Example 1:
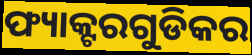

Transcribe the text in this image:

ଫ୍ୟାକ୍ଟରଗୁଡିକର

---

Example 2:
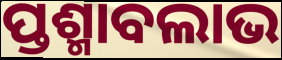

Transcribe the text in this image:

ପ୍ତଶ୍ମାବଲାଭ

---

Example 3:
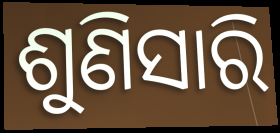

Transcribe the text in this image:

ଶୁଣିସାରି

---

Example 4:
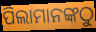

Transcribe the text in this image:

ପିଲାମାନଙ୍କଠୁ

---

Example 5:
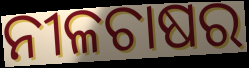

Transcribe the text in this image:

ନୀଳଚାଷର